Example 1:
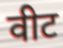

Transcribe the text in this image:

वीट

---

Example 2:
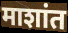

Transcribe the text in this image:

माशांत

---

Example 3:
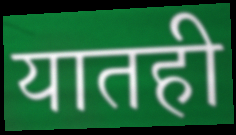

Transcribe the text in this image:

यातही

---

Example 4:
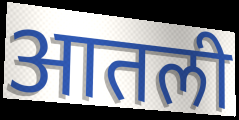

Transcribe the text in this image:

आतली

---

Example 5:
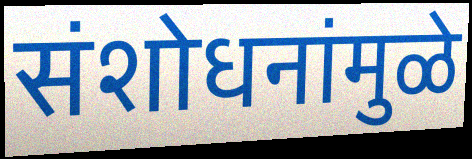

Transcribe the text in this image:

संशोधनांमुळे